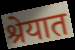
श्रेयात